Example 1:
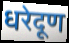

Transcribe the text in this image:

धरेदूण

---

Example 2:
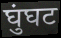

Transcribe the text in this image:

घुंघट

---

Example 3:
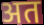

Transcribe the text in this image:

अत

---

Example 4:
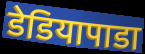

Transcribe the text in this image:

डेडियापाडा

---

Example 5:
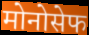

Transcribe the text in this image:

मोनोसेफ